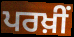
ਪਰਖ਼ੀਂ